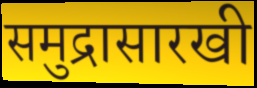
समुद्रासारखी